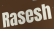
Rasesh